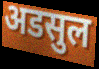
अडसुल